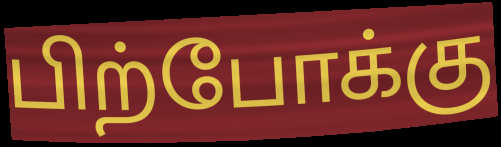
பிற்போக்கு